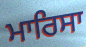
ਮਾਰਿਸਾ